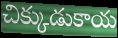
చిక్కుడుకాయ